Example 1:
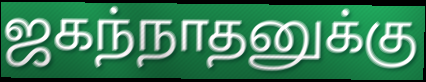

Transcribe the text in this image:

ஜகந்நாதனுக்கு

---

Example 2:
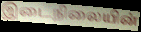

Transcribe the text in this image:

இடைநிலையின்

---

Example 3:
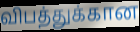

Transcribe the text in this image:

விபத்துக்கான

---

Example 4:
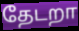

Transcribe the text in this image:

தேடறா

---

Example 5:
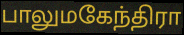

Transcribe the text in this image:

பாலுமகேந்திரா